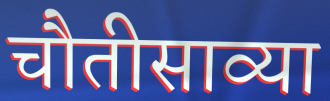
चौतीसाव्या